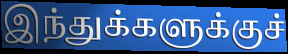
இந்துக்களுக்குச்